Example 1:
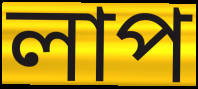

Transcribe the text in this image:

লাপ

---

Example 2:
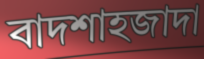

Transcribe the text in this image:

বাদশাহজাদা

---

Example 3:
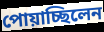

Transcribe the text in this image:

পোয়াচ্ছিলেন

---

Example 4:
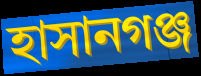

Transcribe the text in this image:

হাসানগঞ্জ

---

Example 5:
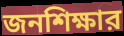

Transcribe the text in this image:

জনশিক্ষার